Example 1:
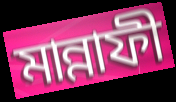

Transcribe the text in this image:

মান্নাফী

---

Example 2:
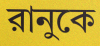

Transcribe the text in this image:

রানুকে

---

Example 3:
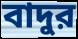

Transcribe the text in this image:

বাদুর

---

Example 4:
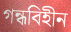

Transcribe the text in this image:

গন্ধবিহীন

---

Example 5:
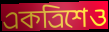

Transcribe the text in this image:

একত্রিশেও